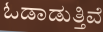
ಓಡಾಡುತ್ತಿವೆ